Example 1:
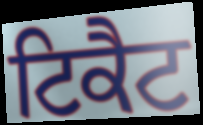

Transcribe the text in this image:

ਟਿਕੈਟ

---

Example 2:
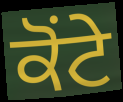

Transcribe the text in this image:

ਕੋਂਟੇ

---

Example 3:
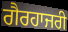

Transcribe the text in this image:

ਗੈਰਹਾਜਰੀ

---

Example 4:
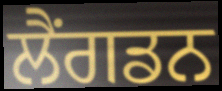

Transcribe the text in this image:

ਲੈਂਗਡਨ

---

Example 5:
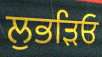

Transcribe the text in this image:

ਲੁਭੜਿਓ